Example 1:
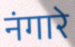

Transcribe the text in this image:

नंगारे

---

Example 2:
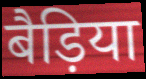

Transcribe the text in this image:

बैड़िया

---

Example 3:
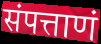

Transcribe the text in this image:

संपत्ताणं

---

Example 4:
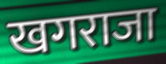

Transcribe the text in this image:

खगराजा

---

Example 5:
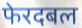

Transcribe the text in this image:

फेरदबल